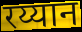
रय्यान